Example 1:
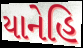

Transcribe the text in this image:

યાનેહિ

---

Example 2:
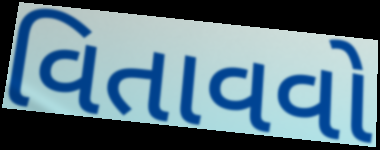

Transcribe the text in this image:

વિતાવવો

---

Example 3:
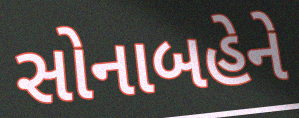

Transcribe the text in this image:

સોનાબહેને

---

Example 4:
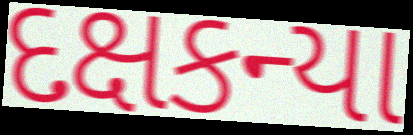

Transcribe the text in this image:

દક્ષકન્યા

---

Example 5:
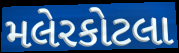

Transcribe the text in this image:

મલેરકોટલા